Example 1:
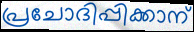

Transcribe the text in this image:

പ്രചോദിപ്പിക്കാന്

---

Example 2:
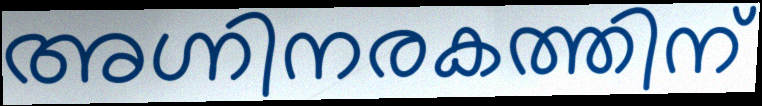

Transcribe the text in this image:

അഗ്നിനരകത്തിന്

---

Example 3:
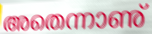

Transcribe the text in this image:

അതെന്നാണു്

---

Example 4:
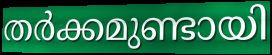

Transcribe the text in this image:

തർക്കമുണ്ടായി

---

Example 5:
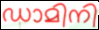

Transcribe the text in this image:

ഡാമിനി